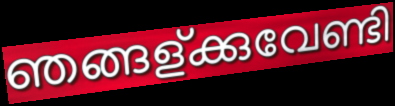
ഞങ്ങള്ക്കുവേണ്ടി